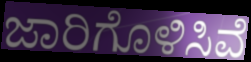
ಜಾರಿಗೊಳಿಸಿವೆ